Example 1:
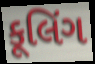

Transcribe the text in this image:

કૂલિંગ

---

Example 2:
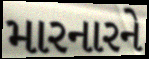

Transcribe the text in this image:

મારનારને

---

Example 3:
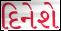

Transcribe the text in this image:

દિનેશે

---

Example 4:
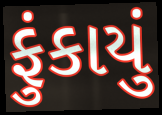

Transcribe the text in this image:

ફુંકાયું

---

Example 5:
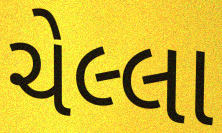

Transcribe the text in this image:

ચેલ્લા